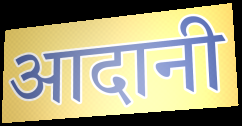
आदानी